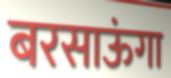
बरसाऊंगा